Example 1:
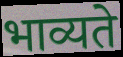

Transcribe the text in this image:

भाव्यते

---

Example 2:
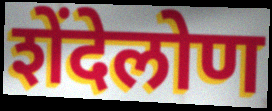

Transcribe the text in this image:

शेंदेलोण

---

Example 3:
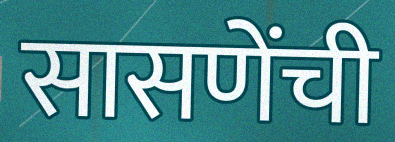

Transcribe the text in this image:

सासणेंची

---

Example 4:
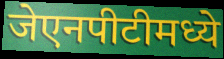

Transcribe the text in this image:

जेएनपीटीमध्ये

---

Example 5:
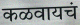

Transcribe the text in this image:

कळवायचं